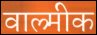
वाल्मीक